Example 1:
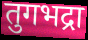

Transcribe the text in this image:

तुगभद्रा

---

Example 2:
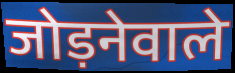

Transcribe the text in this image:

जोड़नेवाले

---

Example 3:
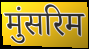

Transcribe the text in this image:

मुंसरिम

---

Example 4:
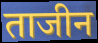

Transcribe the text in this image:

ताजीन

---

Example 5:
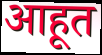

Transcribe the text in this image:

आहूत